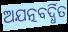
ଅଯତ୍ନବର୍ଦ୍ଧିତ